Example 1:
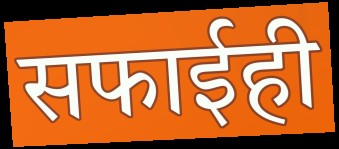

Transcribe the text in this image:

सफाईही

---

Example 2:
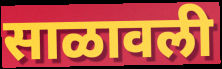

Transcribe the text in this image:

साळावली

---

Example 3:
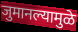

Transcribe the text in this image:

जुमानल्यामुळे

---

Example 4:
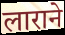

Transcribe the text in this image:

लाराने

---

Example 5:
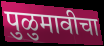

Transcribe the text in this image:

पुळुमावीचा